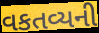
વકતવ્યની